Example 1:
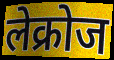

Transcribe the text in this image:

लेक्रोज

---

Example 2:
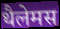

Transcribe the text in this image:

थैलेमस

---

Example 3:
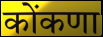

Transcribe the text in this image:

कोंकणा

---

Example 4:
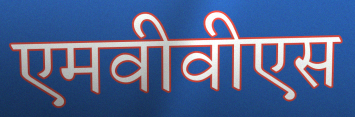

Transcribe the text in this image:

एमवीवीएस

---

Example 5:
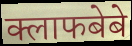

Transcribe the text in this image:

क्लाफबेबे